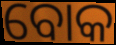
ବୋକ